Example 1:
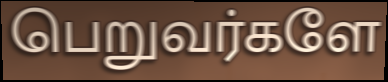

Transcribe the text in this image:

பெறுவர்களே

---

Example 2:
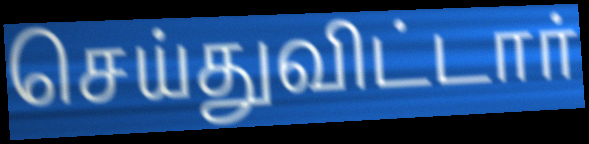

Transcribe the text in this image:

செய்துவிட்டார்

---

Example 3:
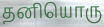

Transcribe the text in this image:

தனியொரு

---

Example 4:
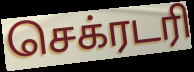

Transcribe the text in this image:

செக்ரடரி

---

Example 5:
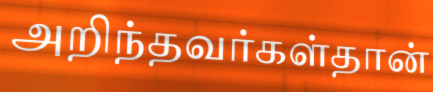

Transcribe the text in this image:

அறிந்தவர்கள்தான்